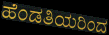
ಹೆಂಡತಿಯರಿಂದ